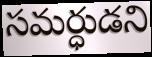
సమర్ధుడని